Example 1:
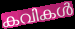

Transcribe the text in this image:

കവികൾ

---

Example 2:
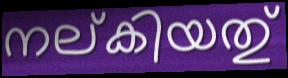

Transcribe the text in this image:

നല്കിയതു്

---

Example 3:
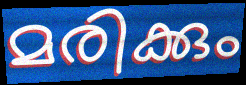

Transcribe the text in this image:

മരിക്കും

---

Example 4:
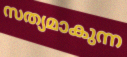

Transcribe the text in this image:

സത്യമാകുന്ന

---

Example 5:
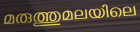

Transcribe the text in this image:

മരുത്തുമലയിലെ